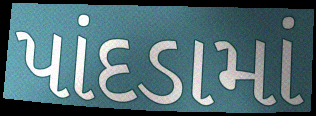
પાંદડામાં